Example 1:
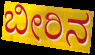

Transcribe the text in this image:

ಬೀರಿನ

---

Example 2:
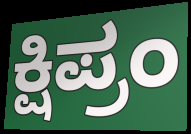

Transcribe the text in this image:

ಕ್ಷಿಪ್ರಂ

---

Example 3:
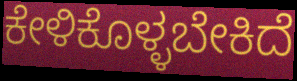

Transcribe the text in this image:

ಕೇಳಿಕೊಳ್ಳಬೇಕಿದೆ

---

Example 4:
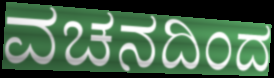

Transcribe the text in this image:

ವಚನದಿಂದ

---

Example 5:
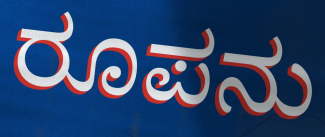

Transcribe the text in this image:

ರೂಪನು